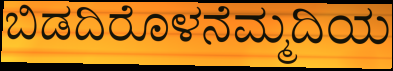
ಬಿಡದಿರೊಳನೆಮ್ಮದಿಯ